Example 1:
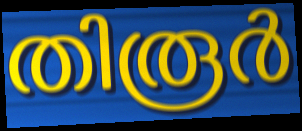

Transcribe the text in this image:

തിരൂർ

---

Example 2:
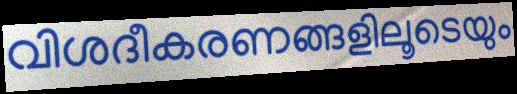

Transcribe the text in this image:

വിശദീകരണങ്ങളിലൂടെയും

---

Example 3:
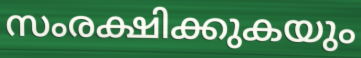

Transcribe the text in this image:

സംരക്ഷിക്കുകയും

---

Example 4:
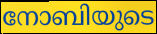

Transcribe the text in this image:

നോബിയുടെ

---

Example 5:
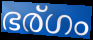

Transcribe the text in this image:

ഭര്ഗം